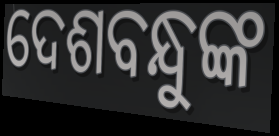
ଦେଶବନ୍ଧୁଙ୍କ